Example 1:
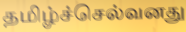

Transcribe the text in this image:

தமிழ்ச்செல்வனது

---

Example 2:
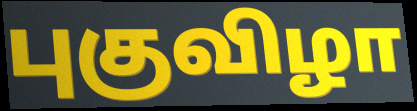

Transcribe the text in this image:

புகுவிழா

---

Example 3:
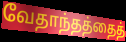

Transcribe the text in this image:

வேதாந்தத்தைத்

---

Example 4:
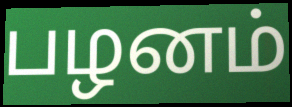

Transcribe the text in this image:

பழனம்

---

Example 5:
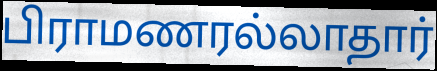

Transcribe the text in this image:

பிராமணரல்லாதார்